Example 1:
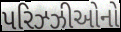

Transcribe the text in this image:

પરિઝ્ઝીઓનો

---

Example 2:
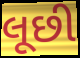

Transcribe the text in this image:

લૂછી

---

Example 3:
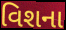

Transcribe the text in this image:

વિશના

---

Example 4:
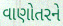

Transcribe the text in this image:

વાણોતરને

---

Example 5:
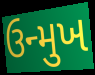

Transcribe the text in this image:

ઉન્મુખ